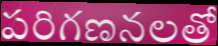
పరిగణనలతో